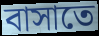
বাসাতে